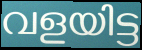
വളയിട്ട